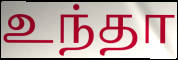
உந்தா